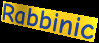
Rabbinic